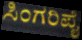
ಸಿಂಗರಿಪೈ